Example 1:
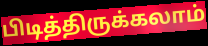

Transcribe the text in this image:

பிடித்திருக்கலாம்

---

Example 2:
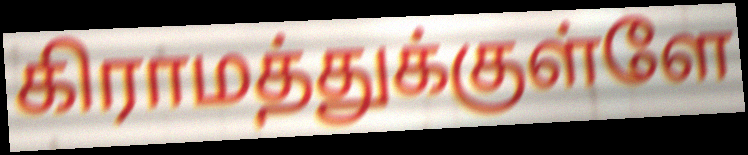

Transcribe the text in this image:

கிராமத்துக்குள்ளே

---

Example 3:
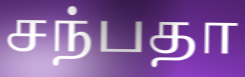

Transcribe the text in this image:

சந்பதா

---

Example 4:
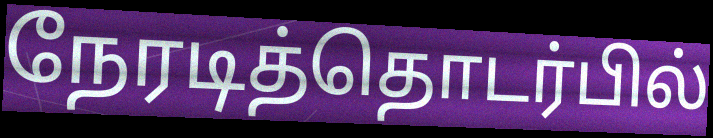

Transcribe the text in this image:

நேரடித்தொடர்பில்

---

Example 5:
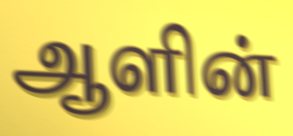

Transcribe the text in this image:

ஆளின்